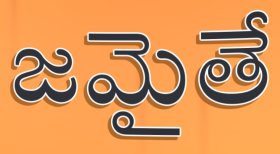
జమైతే